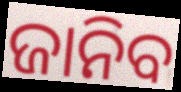
ଜାନିବ